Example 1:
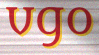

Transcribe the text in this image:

ugo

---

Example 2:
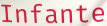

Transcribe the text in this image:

Infante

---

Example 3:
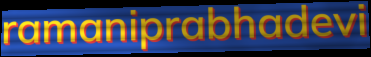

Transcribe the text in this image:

ramaniprabhadevi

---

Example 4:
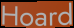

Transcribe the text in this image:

Hoard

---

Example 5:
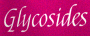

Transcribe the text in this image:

Glycosides